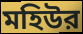
মহিউর